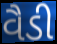
વૈડી